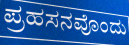
ಪ್ರಹಸನವೊಂದು